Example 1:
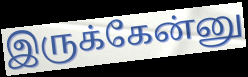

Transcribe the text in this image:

இருக்கேன்னு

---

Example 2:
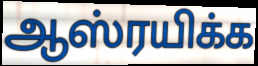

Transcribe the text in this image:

ஆஸ்ரயிக்க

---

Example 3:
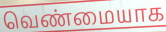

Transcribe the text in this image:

வெண்மையாக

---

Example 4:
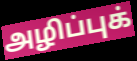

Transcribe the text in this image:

அழிப்புக்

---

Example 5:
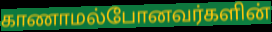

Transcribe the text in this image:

காணாமல்போனவர்களின்